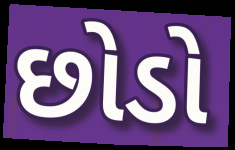
છોડો